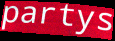
partys